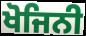
ਖੋਜਿਨੀ